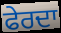
ਫੇਰਦਾ